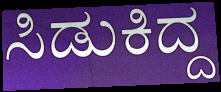
ಸಿಡುಕಿದ್ದ